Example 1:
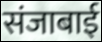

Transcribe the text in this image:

संजाबाई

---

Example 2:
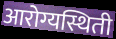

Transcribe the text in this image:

आरोग्यस्थिती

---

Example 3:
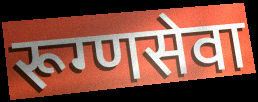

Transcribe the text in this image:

रूग्णसेवा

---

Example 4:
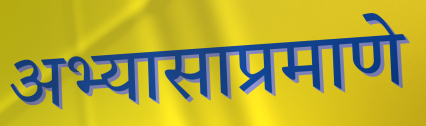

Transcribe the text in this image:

अभ्यासाप्रमाणे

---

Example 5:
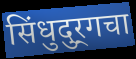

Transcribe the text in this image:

सिंधुदुर्गचा